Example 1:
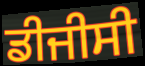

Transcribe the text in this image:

ਡੀਜੀਸੀ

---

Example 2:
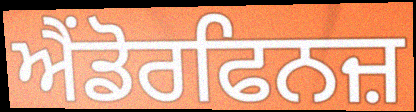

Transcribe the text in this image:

ਐਂਡੋਰਫਿਨਜ਼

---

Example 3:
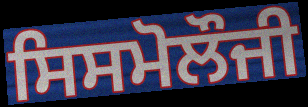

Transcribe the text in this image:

ਸਿਸਮੋਲੌਜੀ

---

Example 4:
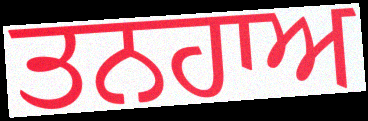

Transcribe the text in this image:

ਤਨਹਾਅ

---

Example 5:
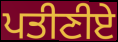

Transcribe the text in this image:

ਪਤੀਣੀਏ